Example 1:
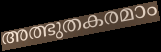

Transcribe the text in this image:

അത്ഭുതകരമാം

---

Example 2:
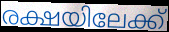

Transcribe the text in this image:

രക്ഷയിലേക്ക്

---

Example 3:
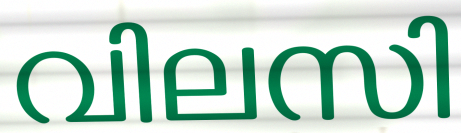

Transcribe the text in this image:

വിലസി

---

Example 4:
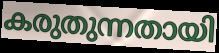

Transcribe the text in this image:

കരുതുന്നതായി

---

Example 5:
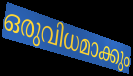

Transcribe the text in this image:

ഒരുവിധമാക്കും